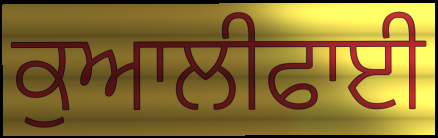
ਕੁਆਲੀਫਾਈ